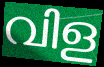
വിള